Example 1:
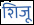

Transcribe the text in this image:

शिजू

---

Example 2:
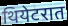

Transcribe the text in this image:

थियेटरात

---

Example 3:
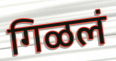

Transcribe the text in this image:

गिळलं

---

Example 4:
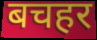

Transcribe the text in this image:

बचहर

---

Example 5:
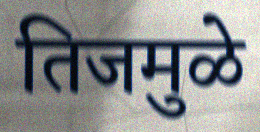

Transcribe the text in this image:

तिजमुळे